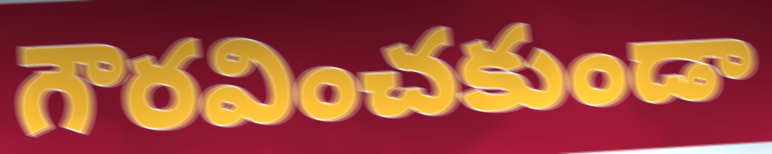
గౌరవించకుండా